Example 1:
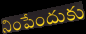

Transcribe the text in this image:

నింపేందుకు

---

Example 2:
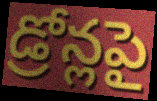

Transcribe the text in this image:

డ్రోన్లపై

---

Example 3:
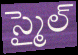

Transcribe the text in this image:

స్మైల్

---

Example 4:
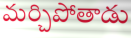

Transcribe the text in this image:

మర్చిపోతాడు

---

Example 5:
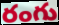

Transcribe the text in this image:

రంగు